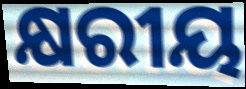
କ୍ଷରୀୟ